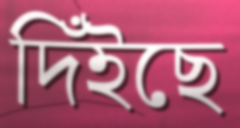
দিঁইছে